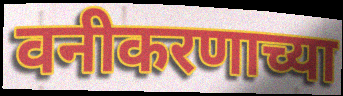
वनीकरणाच्या